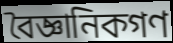
বৈজ্ঞানিকগণ